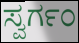
ಸ್ವರ್ಗಂ